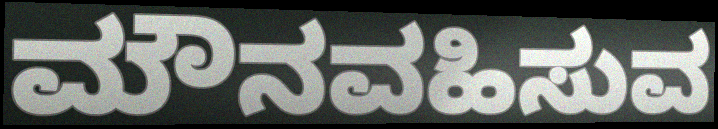
ಮೌನವಹಿಸುವ